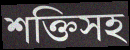
শক্তিসহ